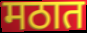
मठात